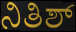
ನಿತಿಶ್